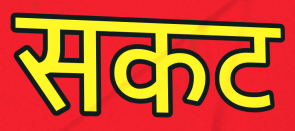
सकट